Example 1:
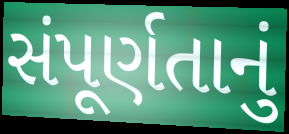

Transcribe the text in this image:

સંપૂર્ણતાનું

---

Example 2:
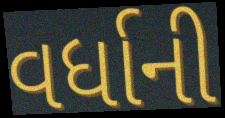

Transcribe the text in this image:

વર્ધાની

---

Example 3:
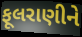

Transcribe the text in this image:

ફૂલરાણીને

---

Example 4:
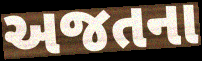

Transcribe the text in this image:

અજતના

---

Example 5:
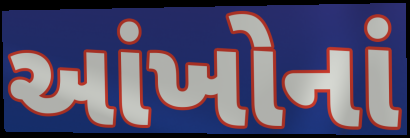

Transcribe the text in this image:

આંખોનાં